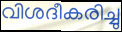
വിശദീകരിച്ചു